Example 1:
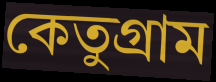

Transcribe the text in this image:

কেতুগ্রাম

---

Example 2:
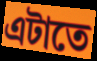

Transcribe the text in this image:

এটাতে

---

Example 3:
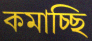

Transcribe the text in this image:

কমাচ্ছি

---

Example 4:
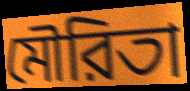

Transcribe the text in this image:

মৌরিতা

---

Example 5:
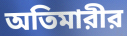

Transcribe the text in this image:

অতিমারীর